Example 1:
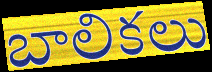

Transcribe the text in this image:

బాలికలు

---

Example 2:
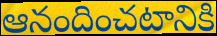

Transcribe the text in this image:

ఆనందించటానికి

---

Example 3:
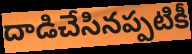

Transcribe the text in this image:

దాడిచేసినప్పటికీ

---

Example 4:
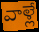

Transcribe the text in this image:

వాళ్లే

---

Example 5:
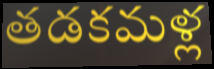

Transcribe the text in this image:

తడకమళ్ల